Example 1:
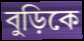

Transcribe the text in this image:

বুড়িকে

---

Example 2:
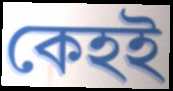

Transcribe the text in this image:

কেহই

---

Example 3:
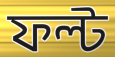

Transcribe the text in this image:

ফল্ট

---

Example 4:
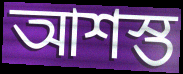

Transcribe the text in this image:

আশস্ত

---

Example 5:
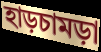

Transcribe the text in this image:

হাড়চামড়া